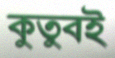
কুতুবই